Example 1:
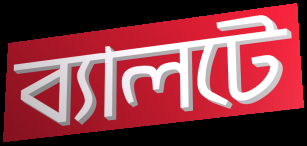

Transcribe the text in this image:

ব্যালটে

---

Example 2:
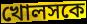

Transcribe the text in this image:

খোলসকে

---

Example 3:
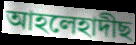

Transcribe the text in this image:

আহলেহাদীছ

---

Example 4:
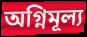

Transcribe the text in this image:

অগ্নিমূল্য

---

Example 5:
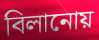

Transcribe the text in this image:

বিলানোয়